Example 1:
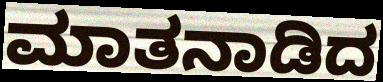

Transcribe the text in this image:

ಮಾತನಾಡಿದ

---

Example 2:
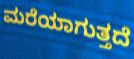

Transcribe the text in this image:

ಮರೆಯಾಗುತ್ತದೆ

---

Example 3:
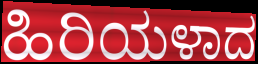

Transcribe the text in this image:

ಹಿರಿಯಳಾದ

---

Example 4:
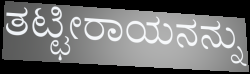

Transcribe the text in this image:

ತಟ್ಟೀರಾಯನನ್ನು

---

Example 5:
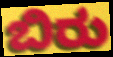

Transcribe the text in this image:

ಬಿರು